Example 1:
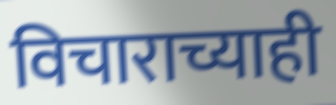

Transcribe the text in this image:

विचाराच्याही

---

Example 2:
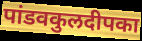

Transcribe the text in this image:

पांडवकुलदीपका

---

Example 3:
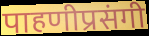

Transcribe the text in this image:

पाहणीप्रसंगी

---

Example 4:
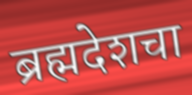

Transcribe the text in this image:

ब्रह्मदेशचा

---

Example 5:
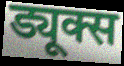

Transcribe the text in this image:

ड्यूक्‍स